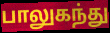
பாலுகந்து